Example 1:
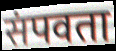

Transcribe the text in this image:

संपवता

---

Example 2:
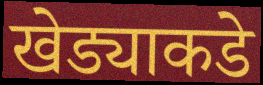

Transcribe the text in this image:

खेड्याकडे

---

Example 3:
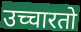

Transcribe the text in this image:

उच्चारतो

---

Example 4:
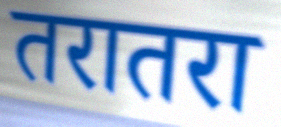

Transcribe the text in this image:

तरातरा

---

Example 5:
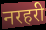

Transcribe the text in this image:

नरहरी